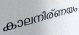
കാലനിര്ണയം